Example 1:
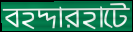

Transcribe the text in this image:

বহদ্দারহাটে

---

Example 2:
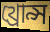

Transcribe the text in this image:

থ্রোন্স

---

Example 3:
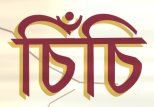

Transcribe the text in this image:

চিঁচি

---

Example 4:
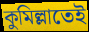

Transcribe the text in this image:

কুমিল্লাতেই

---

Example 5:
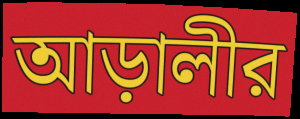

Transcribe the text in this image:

আড়ালীর